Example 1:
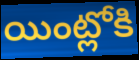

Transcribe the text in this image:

యింట్లోకి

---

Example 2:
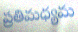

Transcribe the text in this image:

ప్రతిమధ్యమ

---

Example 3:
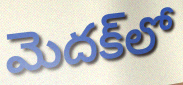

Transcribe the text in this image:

మెదక్‌లో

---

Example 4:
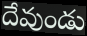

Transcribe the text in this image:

దేవుండు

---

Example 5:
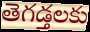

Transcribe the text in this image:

తెగడ్తలకు